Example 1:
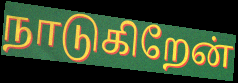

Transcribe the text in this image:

நாடுகிறேன்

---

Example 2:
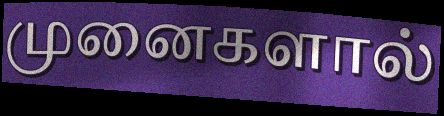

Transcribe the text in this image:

முனைகளால்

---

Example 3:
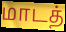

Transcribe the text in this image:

மாடத்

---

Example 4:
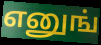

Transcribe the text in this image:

எனுங்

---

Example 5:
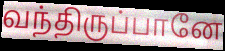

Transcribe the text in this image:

வந்திருப்பானே